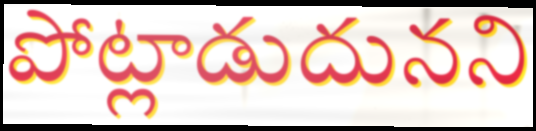
పోట్లాడుదునని